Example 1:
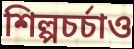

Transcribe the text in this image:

শিল্পচর্চাও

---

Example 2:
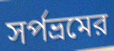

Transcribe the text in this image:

সর্পভ্রমের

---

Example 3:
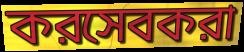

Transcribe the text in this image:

করসেবকরা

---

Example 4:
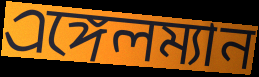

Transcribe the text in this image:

এঙ্গেলম্যান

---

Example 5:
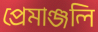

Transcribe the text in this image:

প্রেমাঞ্জলি